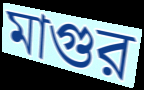
মাগুর